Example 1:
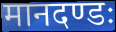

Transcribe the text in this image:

मानदण्डः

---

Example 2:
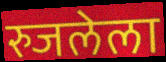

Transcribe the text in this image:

रुजलेला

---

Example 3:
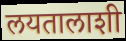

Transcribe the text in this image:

लयतालाशी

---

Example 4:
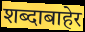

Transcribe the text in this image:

शब्दाबाहेर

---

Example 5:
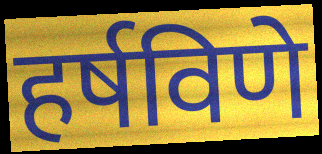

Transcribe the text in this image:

हर्षविणे